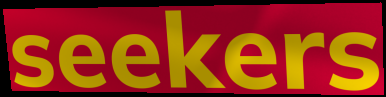
seekers